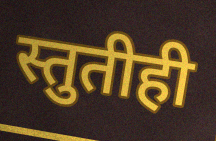
स्तुतीही